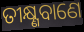
ତୀକ୍ଷ୍ଣବାଣେ